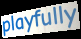
playfully